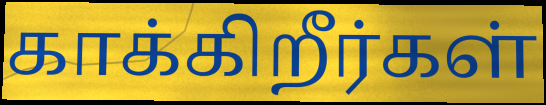
காக்கிறீர்கள்